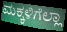
ಮಕ್ಕಳಿಗೆಲ್ಲಾ